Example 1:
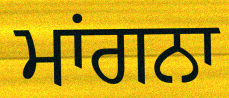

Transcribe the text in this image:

ਮਾਂਗਨਾ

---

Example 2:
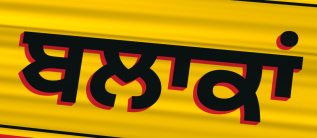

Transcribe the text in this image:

ਬਲਾਕਾਂ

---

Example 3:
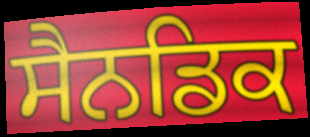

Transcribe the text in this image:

ਸੈਨਡਿਕ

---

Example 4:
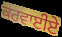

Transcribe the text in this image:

ਕਰਵਾਈਏ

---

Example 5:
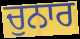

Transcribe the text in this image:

ਚੁਨਾਰ